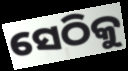
ସେଠିକୁ